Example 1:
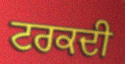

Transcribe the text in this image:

ਟਰਕਦੀ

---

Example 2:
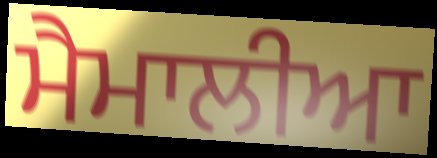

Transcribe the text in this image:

ਮੈਮਾਲੀਆ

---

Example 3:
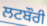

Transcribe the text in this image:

ਲਟਬੌਰੀ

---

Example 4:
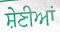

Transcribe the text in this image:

ਸ਼ੇਣੀਆਂ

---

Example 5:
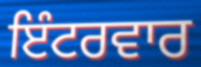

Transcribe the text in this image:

ਇੰਟਰਵਾਰ